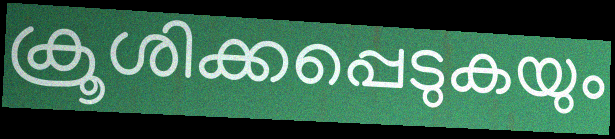
ക്രൂശിക്കപ്പെടുകയും